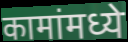
कामांमध्ये